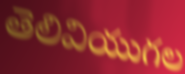
తెలివియుగల